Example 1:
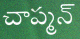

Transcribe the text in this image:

చాప్మన్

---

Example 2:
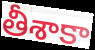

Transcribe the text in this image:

తీశాకా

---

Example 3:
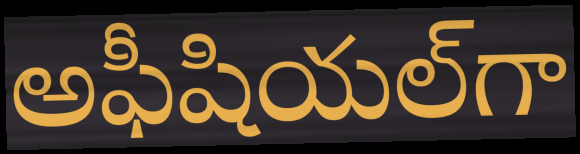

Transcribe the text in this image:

అఫీషియల్‌గా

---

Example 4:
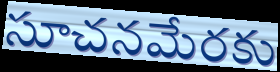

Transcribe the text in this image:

సూచనమేరకు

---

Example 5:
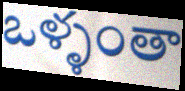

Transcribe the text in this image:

ఒళ్ళంతా